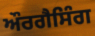
ਔਰਗੈਸਿੰਗ